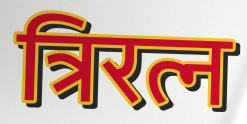
त्रिरत्न